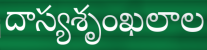
దాస్యశృంఖలాల